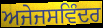
ਅਜੇਜਸਵਿੰਦਰ